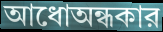
আধোঅন্ধকার